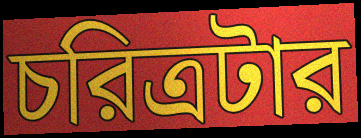
চরিত্রটার